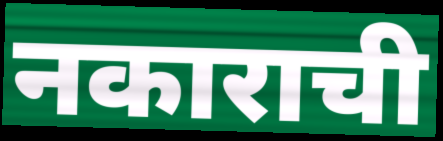
नकाराची